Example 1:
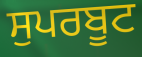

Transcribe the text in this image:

ਸੁਪਰਬੂਟ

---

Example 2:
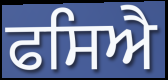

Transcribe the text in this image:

ਫਸਿਐ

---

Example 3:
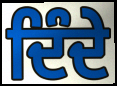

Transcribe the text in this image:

ਦਿੰਦੇ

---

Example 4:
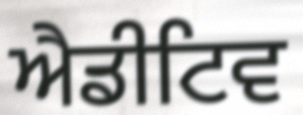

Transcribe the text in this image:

ਐਡੀਟਿਵ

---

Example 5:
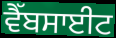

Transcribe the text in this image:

ਵੈੱਬਸਾਈਟ